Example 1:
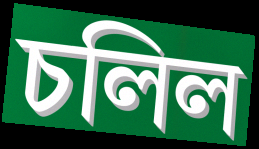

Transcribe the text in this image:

চলিল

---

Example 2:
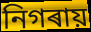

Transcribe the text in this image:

নিগৰায়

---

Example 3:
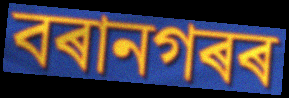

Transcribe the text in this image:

বৰানগৰৰ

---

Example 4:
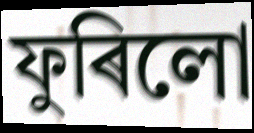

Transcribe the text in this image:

ফুৰিলো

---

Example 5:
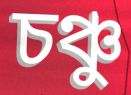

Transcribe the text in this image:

চঞ্চু